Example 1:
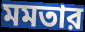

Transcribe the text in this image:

মমতার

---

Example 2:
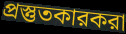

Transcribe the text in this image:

প্রস্তুতকারকরা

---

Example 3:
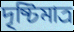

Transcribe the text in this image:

দৃষ্টিমাত্র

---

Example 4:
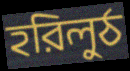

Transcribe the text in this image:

হরিলুঠ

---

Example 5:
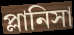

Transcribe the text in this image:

প্লানিসা